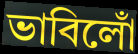
ভাবিলোঁ